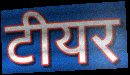
टीयर